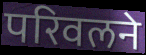
परिवलने